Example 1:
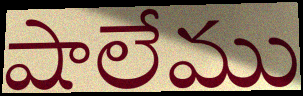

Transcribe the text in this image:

షాలేము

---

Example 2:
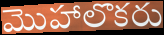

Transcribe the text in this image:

మొహాలొకరు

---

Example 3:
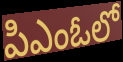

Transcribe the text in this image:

పిఎంఓలో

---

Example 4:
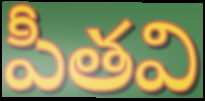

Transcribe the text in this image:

పీతవి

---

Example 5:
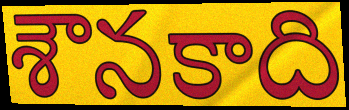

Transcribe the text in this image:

శౌనకాది